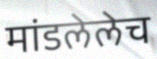
मांडलेलेच